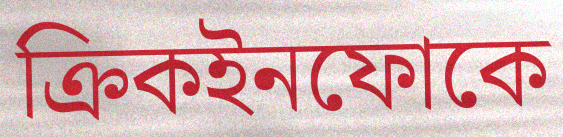
ক্রিকইনফোকে